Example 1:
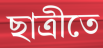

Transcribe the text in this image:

ছাত্রীতে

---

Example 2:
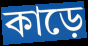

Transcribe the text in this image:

কাড়ে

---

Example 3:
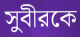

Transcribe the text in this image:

সুবীরকে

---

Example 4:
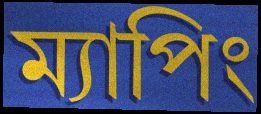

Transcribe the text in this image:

ম্যাপিং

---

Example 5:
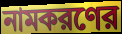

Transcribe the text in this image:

নামকরণের